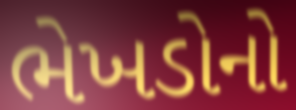
ભેખડોનો